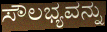
ಸೌಲಭ್ಯವನ್ನು